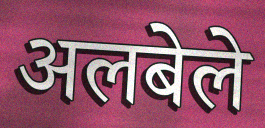
अलबेले